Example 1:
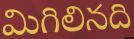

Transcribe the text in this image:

మిగిలినది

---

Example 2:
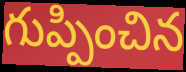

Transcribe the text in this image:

గుప్పించిన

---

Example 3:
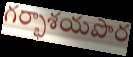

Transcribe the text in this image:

గర్భాశయపొర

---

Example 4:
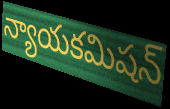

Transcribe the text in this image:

న్యాయకమిషన్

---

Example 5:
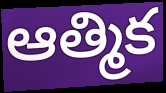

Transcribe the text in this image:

ఆత్మిక